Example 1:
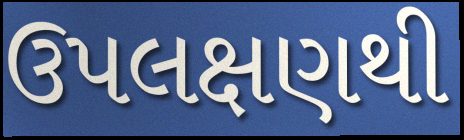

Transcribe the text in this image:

ઉપલક્ષણથી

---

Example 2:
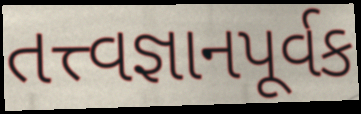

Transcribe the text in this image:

તત્ત્વજ્ઞાનપૂર્વક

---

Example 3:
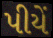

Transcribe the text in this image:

પીયેં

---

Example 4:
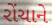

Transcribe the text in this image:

રોંચાને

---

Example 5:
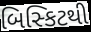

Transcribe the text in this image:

બિસ્કિટથી